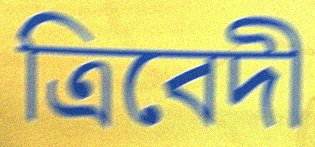
ত্রিবেদী